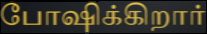
போஷிக்கிறார்